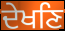
ਦੇਖਣਿ